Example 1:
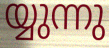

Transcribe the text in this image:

യ്യുന്നു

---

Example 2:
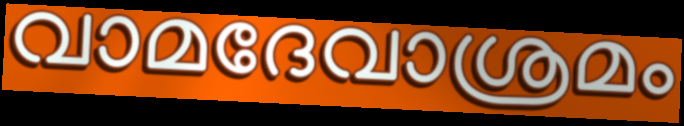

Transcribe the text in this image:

വാമദേവാശ്രമം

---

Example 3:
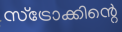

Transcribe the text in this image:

സ്ട്രോക്കിന്റെ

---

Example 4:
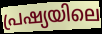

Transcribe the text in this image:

പ്രഷ്യയിലെ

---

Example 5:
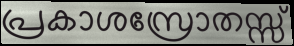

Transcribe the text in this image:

പ്രകാശസ്രോതസ്സ്